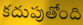
కదుపుతోంది